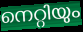
നെറ്റിയും